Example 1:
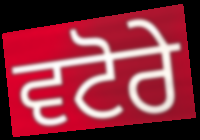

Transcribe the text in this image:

ਵਟੋਰੇ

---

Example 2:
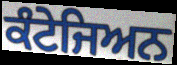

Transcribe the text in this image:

ਕੰਟੇਜਿਅਨ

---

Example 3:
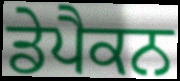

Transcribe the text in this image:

ਡੇਪੈਕਨ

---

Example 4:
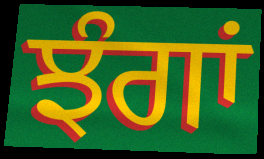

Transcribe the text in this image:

ਝੰਗਾਂ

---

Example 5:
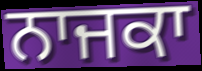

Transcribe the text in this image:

ਨਾਜਕਾ